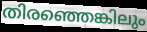
തിരഞ്ഞെങ്കിലും